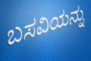
ಬಸವಿಯನ್ನು